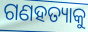
ଗଣହତ୍ୟାକୁ